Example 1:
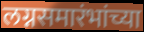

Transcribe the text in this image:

लग्नसमारंभांच्या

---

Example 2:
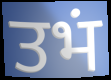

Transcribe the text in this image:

उभं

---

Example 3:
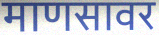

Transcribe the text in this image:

माणसावर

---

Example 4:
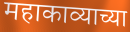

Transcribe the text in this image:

महाकाव्याच्या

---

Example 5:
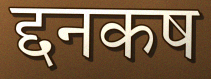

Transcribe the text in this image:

द्दनकष